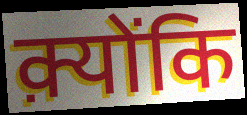
क़्योंकि